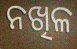
ନଖିଳ